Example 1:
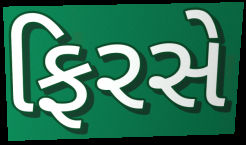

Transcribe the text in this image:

ફિરસે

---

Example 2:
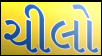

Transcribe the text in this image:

ચીલો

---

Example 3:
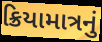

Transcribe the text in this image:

ક્રિયામાત્રનું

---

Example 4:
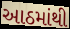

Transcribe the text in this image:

આઠમાંથી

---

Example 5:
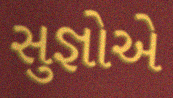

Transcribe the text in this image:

સુજ્ઞોએ